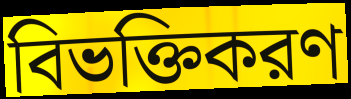
বিভক্তিকরণ